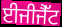
ਈਜੀਜੈੱਟ